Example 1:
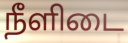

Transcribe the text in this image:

நீளிடை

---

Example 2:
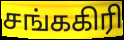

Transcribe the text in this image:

சங்ககிரி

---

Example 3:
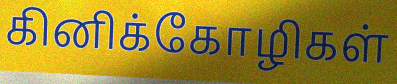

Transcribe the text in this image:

கினிக்கோழிகள்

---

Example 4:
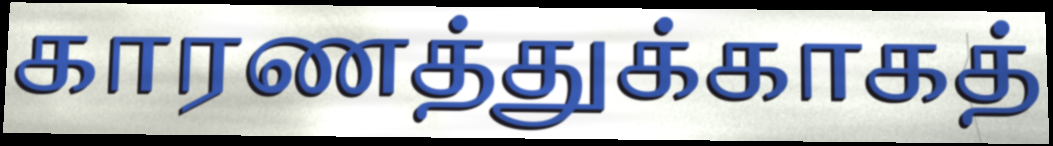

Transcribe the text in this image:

காரணத்துக்காகத்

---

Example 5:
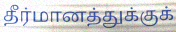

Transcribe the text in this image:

தீர்மானத்துக்குக்